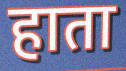
हाता